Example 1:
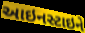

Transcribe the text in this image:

આઇનસ્ટાઇને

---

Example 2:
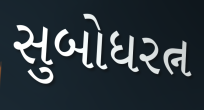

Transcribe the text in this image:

સુબોધરત્ન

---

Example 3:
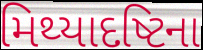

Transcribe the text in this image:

મિથ્યાદષ્ટિના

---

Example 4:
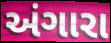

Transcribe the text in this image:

અંગારા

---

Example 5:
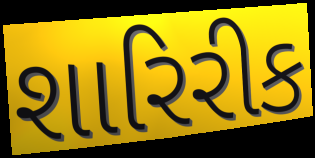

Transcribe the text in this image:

શારિરીક